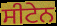
ਸੀਟੇਨ